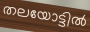
തലയോട്ടിൽ